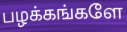
பழக்கங்களே